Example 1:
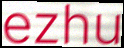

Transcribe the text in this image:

ezhu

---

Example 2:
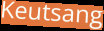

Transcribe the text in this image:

Keutsang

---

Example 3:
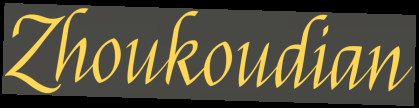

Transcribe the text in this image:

Zhoukoudian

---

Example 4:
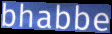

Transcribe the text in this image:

bhabbe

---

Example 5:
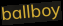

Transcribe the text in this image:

ballboy